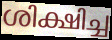
ശിക്ഷിച്ച